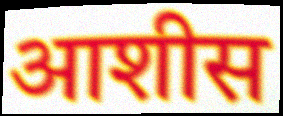
आशीस